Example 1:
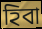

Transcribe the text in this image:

হিবা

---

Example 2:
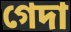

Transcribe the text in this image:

গেদা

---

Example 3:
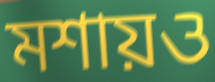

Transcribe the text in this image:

মশায়ও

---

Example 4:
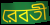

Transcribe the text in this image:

রেবতী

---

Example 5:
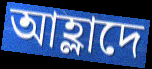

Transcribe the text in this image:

আহ্লাদে